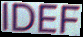
IDEF